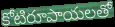
కోటిరూపాయలతో